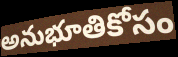
అనుభూతికోసం